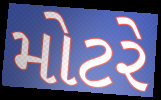
મોટરે